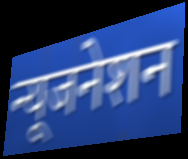
न्यूजनेशन